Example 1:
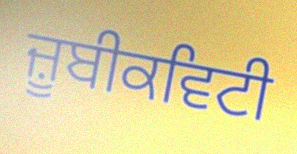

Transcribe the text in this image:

ਜ਼ੂਬੀਕਵਿਟੀ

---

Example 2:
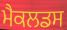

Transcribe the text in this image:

ਮੈਕਲਡਸ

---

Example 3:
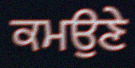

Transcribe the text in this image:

ਕਮਉਣੇ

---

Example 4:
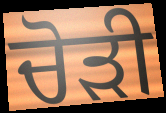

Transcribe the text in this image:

ਚੋੜੀ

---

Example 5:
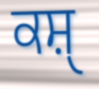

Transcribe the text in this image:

ਕਸ਼ੑ